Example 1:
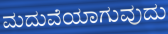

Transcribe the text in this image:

ಮದುವೆಯಾಗುವುದು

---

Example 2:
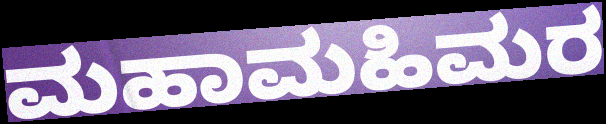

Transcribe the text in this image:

ಮಹಾಮಹಿಮರ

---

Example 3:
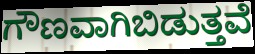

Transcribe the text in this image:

ಗೌಣವಾಗಿಬಿಡುತ್ತವೆ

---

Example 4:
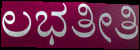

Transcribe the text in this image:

ಲಭತೀತಿ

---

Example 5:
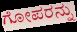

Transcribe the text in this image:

ಗೋಪರನ್ನು